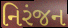
નિરંજન